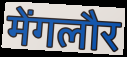
मेंगलौर